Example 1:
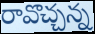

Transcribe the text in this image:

రావొచ్చన్న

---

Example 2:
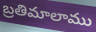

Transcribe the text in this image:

బ్రతిమాలాము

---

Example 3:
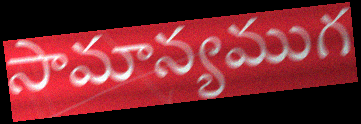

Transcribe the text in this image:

సామాన్యముగ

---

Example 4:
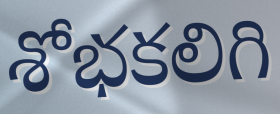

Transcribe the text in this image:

శోభకలిగి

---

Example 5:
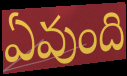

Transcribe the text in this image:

ఏవుంది